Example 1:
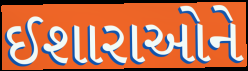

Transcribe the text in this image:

ઈશારાઓને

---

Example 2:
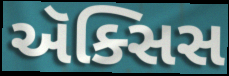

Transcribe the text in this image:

ઍક્સિસ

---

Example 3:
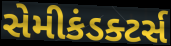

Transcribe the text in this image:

સેમીકંડક્ટર્સ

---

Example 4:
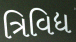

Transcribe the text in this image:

ત્રિવિદ્ય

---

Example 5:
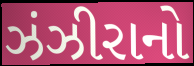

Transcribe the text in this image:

ઝંઝીરાનો